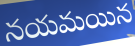
నయమయిన